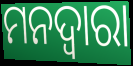
ମନଦ୍ଵାରା